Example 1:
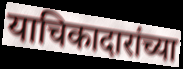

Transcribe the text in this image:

याचिकादारांच्या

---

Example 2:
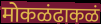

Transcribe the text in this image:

मोकळंढाकळं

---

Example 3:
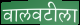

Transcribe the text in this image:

वालवटीला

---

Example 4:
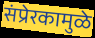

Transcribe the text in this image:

संप्रेरकामुळे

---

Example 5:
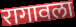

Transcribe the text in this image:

रागावला